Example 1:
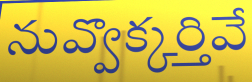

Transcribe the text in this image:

నువ్వొక్కర్తివే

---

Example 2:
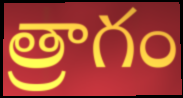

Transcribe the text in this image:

త్రాగం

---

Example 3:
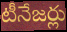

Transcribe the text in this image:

టీనేజర్లు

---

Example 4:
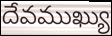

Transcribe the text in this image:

దేవముఖ్యు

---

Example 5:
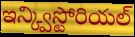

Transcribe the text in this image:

ఇన్క్విస్టోరియల్